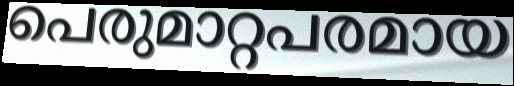
പെരുമാറ്റപരമായ